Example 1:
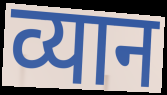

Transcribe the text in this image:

व्यान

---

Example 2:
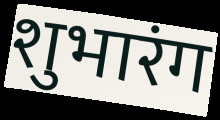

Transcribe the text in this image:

शुभारंग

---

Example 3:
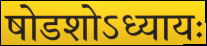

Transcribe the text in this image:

षोडशोऽध्यायः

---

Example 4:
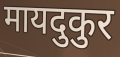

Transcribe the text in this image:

मायदुकुर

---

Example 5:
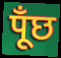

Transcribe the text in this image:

पूँछ